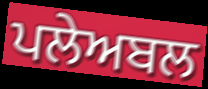
ਪਲੇਅਬਲ